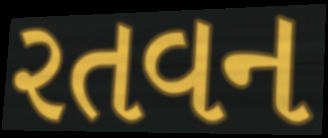
રતવન